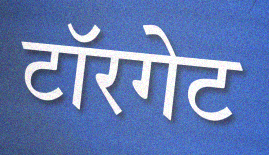
टॉरगेट